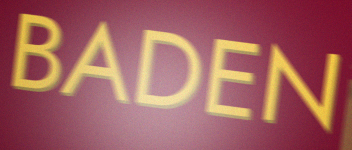
BADEN